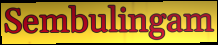
Sembulingam